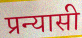
प्रन्यासी